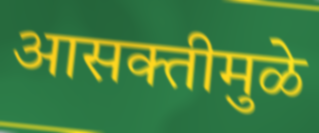
आसक्तीमुळे